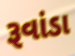
રૂવાંડા